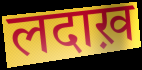
लदाख़